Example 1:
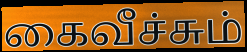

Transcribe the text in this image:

கைவீச்சும்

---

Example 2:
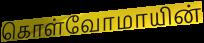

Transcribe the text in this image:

கொள்வோமாயின்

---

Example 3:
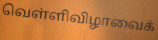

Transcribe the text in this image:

வெள்ளிவிழாவைக்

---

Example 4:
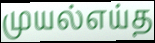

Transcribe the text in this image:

முயல்எய்த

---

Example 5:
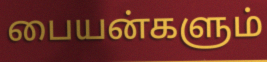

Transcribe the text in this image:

பையன்களும்